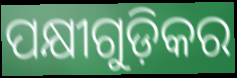
ପକ୍ଷୀଗୁଡ଼ିକର